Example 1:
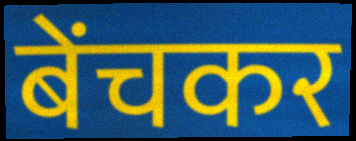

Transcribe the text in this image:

बेंचकर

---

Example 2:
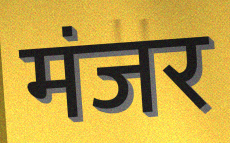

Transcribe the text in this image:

मंजर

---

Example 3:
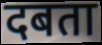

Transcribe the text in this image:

दबता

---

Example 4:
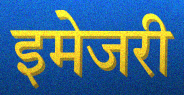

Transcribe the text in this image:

इमेजरी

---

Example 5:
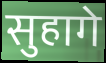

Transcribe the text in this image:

सुहागे